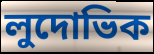
লুদোভিক